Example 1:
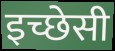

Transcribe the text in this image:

इच्छेसी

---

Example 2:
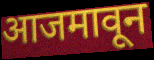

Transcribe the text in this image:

आजमावून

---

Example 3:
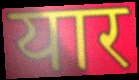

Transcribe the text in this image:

यार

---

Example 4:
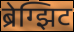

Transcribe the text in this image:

ब्रेग्झिट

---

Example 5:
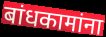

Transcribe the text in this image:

बांधकामांना